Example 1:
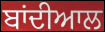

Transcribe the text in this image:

ਬਾਂਦੀਆਲ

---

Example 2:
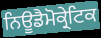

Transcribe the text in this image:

ਨਿਊਡੈਮੋਕ੍ਰੇਟਿਕ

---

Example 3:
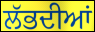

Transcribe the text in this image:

ਲੱਭਦੀਆਂ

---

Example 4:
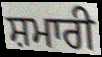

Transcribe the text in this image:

ਸ਼ਮਾਰੀ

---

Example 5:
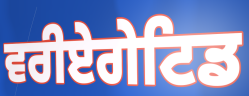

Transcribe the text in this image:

ਵਰੀਏਗੇਟਿਡ